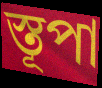
স্তূপা